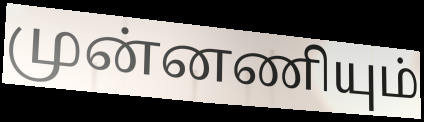
முன்னணியும்